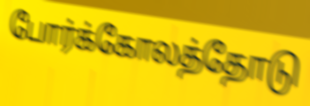
போர்க்கோலத்தோடு